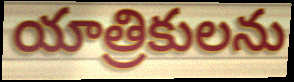
యాత్రికులను